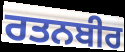
ਰਤਨਬੀਰ